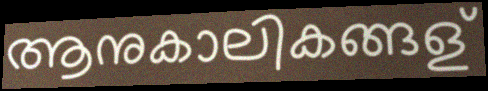
ആനുകാലികങ്ങള്